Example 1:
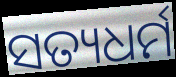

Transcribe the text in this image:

ସତ୍ୟଧର୍ମ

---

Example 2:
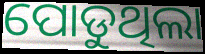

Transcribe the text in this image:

ପୋଡୁଥିଲା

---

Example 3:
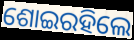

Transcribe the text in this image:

ଶୋଇରହିଲେ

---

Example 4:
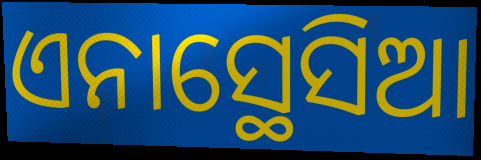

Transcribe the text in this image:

ଏନାସ୍ଥେସିଆ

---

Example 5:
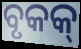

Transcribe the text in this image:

ବୃକକ୍